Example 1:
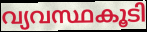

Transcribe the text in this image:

വ്യവസ്ഥകൂടി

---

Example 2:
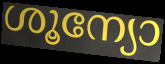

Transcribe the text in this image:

ശൂന്യോ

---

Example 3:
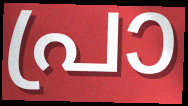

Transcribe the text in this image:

പ്രാ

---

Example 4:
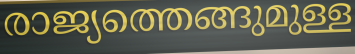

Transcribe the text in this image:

രാജ്യത്തെങ്ങുമുള്ള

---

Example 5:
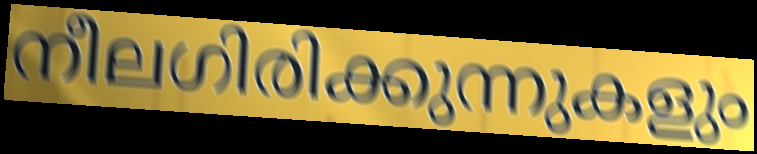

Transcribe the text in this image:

നീലഗിരിക്കുന്നുകളും